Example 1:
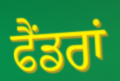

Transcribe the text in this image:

ਫੈਂਡਰਾਂ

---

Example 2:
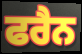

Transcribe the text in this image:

ਫਰੈਨ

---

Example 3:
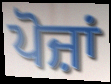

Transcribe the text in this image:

ਪੋਜ਼ਾਂ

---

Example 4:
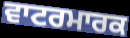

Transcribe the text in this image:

ਵਾਟਰਮਾਰਕ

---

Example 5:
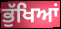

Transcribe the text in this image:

ਭੁੱਖਿਆਂ